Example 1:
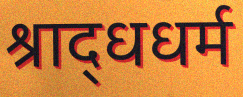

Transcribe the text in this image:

श्राद्धधर्म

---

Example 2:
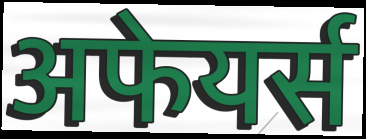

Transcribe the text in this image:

अफेयर्स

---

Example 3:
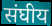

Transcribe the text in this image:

संघीय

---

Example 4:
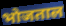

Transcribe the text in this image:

भोजताल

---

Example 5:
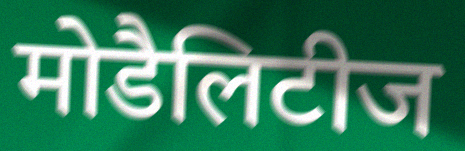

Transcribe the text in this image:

मोडैलिटीज